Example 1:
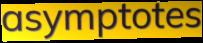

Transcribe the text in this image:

asymptotes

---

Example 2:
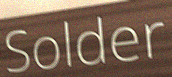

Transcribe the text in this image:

Solder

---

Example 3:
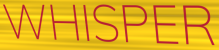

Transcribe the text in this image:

WHISPER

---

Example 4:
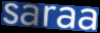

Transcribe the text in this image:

saraa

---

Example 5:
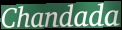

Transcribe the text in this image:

Chandada